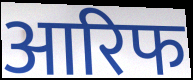
आरिफ